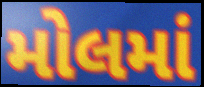
મોલમાં